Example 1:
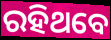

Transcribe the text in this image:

ରହିଥବେ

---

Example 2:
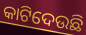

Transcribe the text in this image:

କାଟିଦେଉଛି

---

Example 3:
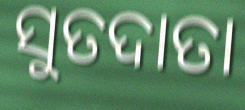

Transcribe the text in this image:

ସୁତଦାତା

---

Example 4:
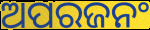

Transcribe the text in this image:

ଅପରଜନଂ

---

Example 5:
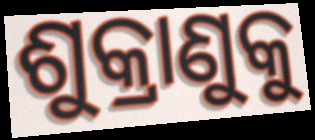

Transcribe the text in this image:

ଶୁକ୍ରାଣୁକୁ